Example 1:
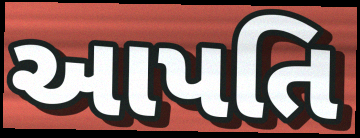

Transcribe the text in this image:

આપતિ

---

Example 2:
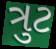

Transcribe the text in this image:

ત્રુટ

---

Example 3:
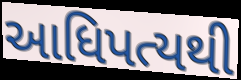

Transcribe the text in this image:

આધિપત્યથી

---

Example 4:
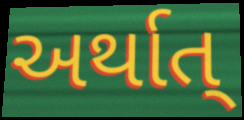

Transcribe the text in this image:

અર્થાત્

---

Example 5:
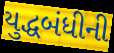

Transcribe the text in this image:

યુદ્ધબંધીની